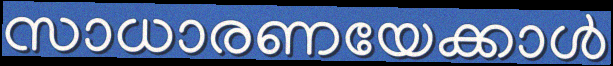
സാധാരണയേക്കാൾ